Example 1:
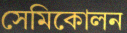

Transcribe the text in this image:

সেমিকোলন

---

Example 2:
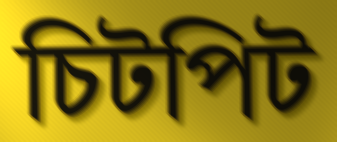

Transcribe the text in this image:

চিটপিট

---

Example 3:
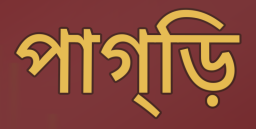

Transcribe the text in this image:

পাগ্ড়ি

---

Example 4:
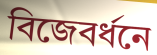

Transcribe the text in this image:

বিজেবর্ধনে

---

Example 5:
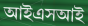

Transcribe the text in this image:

আইএসআই